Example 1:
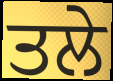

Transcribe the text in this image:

ਤਲੇ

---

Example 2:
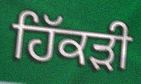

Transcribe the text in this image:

ਹਿੱਕੜੀ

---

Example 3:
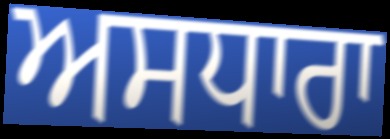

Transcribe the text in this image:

ਅਸਧਾਰਾ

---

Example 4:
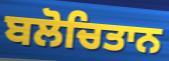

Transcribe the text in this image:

ਬਲੋਚਿਤਾਨ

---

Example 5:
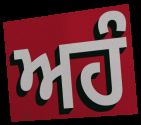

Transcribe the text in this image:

ਅਹੰ